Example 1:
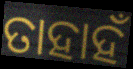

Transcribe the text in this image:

ତାହାହଁ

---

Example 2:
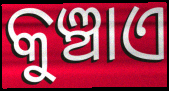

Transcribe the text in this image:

କୁଞ୍ଚାଏ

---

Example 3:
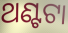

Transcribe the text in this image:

ଥଣ୍ଟଟା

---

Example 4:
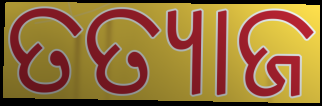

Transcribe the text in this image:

ତତ୍ୟାଜ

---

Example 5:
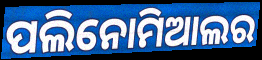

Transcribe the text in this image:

ପଲିନୋମିଆଲର